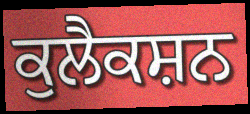
ਕੁਲੈਕਸ਼ਨ